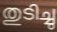
തുടിച്ചു